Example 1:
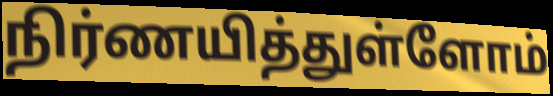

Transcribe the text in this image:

நிர்ணயித்துள்ளோம்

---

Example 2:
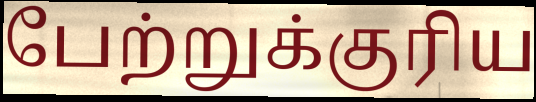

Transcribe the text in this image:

பேற்றுக்குரிய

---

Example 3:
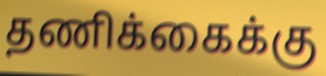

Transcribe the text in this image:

தணிக்கைக்கு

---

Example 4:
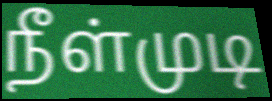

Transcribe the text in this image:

நீள்முடி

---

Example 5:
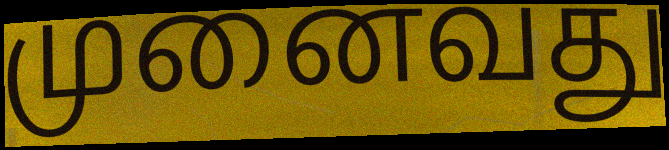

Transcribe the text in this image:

முனைவது